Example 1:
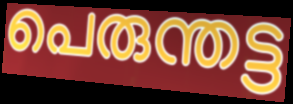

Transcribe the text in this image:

പെരുന്തട്ട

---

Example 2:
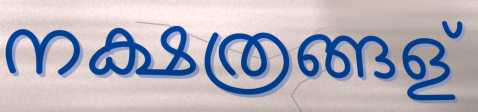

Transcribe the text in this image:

നക്ഷത്രങ്ങള്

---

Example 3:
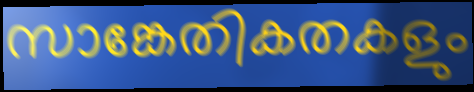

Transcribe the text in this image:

സാങ്കേതികതകളും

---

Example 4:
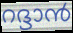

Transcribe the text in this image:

റദ്ദാൻ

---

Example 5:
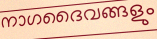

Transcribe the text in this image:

നാഗദൈവങ്ങളും